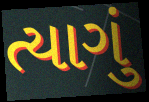
ત્યાગું